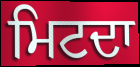
ਮਿਟਦਾ